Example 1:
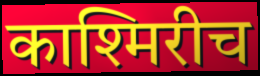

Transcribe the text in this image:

काश्मिरीच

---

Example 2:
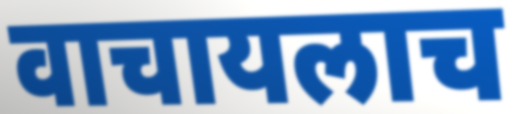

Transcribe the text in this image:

वाचायलाच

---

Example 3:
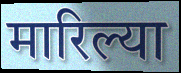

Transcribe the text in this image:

मारिल्या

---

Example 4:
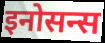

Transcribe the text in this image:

इनोसन्स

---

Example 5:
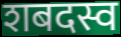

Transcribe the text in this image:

शबदस्व